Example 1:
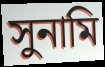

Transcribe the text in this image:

সুনামি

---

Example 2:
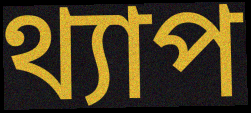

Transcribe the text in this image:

থ্যাপ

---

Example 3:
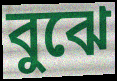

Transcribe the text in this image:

বুঝে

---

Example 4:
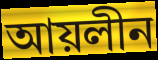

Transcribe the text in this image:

আয়লীন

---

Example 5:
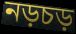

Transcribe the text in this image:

নড়চড়